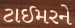
ટાઈમરને